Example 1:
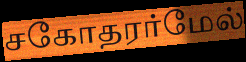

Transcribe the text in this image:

சகோதரர்மேல்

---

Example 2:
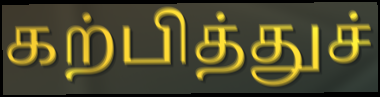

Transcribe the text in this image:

கற்பித்துச்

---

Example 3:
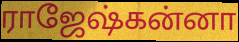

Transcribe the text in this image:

ராஜேஷ்கன்னா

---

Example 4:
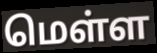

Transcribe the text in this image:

மெள்ள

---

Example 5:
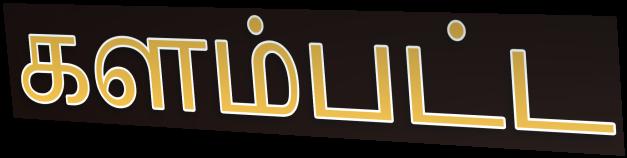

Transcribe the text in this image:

களம்பட்ட